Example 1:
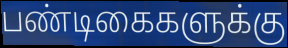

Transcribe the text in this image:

பண்டிகைகளுக்கு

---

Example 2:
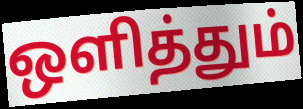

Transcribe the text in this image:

ஒளித்தும்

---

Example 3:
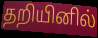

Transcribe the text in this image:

தறியினில்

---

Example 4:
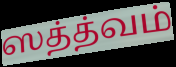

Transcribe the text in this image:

ஸத்த்வம்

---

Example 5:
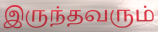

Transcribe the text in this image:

இருந்தவரும்